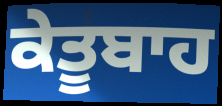
ਕੇਤੂਬਾਹ